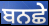
ਬਨਛੇ